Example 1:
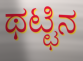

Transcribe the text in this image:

ಥಟ್ಟಿನ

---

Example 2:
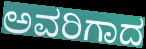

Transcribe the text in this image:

ಅವರಿಗಾದ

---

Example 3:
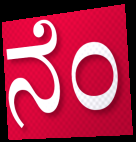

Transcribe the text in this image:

ನೆಂ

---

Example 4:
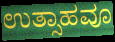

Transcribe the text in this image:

ಉತ್ಸಾಹವೂ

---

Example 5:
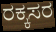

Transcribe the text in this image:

ರಕ್ಕಸರ